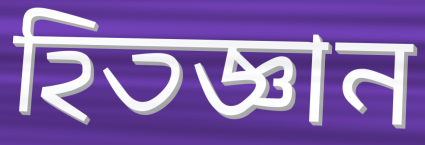
হিতজ্ঞান